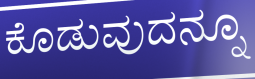
ಕೊಡುವುದನ್ನೂ